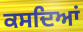
ਕਸਦਿਆਂ